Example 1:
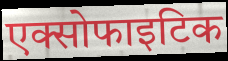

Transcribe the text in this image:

एक्सोफाइटिक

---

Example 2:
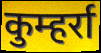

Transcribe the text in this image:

कुम्हर्रा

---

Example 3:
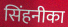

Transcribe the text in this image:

सिंहनीका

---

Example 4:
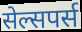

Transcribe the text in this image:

सेल्सपर्स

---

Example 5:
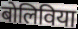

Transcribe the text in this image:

बोलिविया